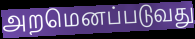
அறமெனப்படுவது